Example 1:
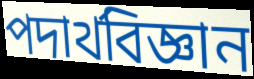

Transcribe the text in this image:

পদার্থবিজ্ঞান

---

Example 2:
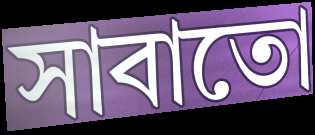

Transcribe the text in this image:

সাবাতো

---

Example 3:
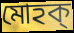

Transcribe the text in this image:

মোহক্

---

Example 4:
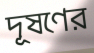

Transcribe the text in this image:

দূষণের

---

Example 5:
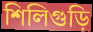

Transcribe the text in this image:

শিলিগুড়ি